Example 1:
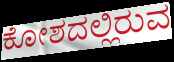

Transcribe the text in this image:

ಕೋಶದಲ್ಲಿರುವ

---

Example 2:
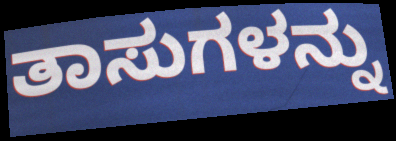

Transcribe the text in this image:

ತಾಸುಗಳನ್ನು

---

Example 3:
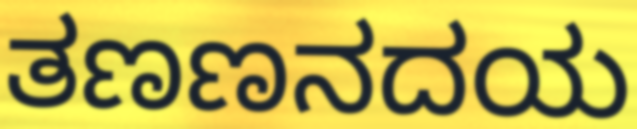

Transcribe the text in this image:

ತಣಣನದಯ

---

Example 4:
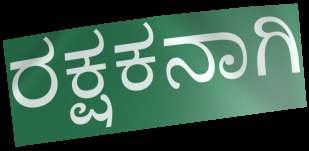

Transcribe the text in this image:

ರಕ್ಷಕನಾಗಿ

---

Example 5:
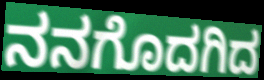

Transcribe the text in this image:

ನನಗೊದಗಿದ